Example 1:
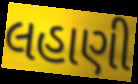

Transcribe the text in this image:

લહાણી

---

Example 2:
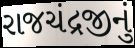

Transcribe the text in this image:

રાજચંદ્રજીનું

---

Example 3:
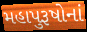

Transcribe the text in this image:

મહાપુરૂષોનાં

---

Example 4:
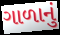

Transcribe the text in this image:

ગાળાનું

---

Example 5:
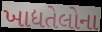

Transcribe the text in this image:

ખાદ્યતેલોના